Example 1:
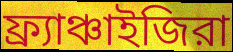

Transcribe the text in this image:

ফ্র্যাঞ্চাইজিরা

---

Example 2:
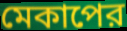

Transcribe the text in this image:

মেকাপের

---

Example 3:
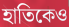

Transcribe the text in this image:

হাতিকেও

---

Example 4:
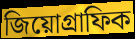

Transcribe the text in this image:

জিয়োগ্রাফিক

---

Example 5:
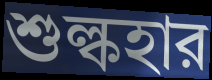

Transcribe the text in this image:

শুল্কহার